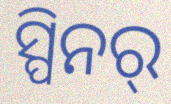
ସ୍ପିନର୍